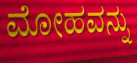
ಮೋಹವನ್ನು